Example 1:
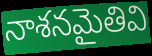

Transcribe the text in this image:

నాశనమైతివి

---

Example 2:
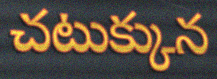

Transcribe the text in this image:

చటుక్కున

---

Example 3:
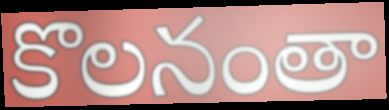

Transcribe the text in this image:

కొలనంతా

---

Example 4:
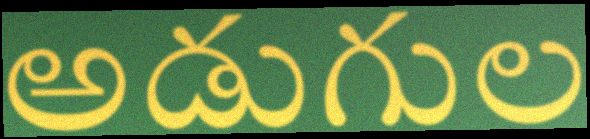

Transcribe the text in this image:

అడుగుల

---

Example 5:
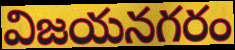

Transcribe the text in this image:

విజయనగరం